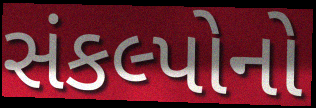
સંકલ્પોનો